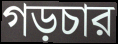
গড়চার